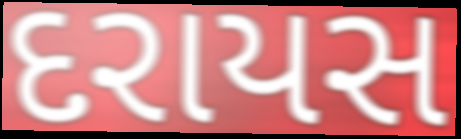
દરાયસ